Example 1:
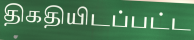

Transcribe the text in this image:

திகதியிடப்பட்ட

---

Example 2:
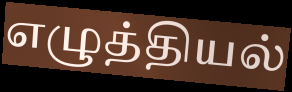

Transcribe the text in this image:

எழுத்தியல்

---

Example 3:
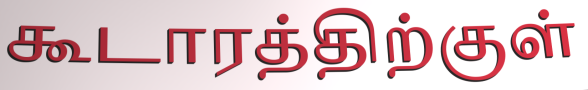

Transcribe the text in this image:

கூடாரத்திற்குள்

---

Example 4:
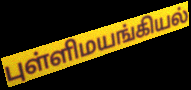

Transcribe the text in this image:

புள்ளிமயங்கியல்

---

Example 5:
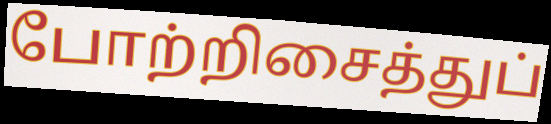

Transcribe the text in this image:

போற்றிசைத்துப்